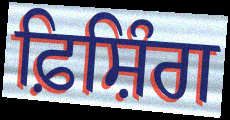
ਫ਼ਿਸ਼ਿੰਗ